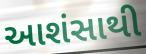
આશંસાથી